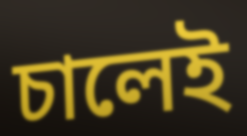
চালেই